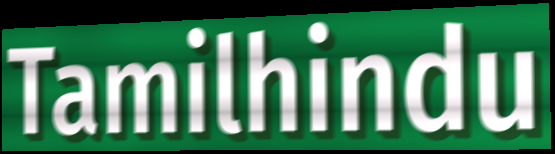
Tamilhindu